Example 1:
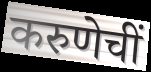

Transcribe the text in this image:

करुणेचीं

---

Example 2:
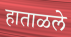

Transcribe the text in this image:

हाताळले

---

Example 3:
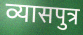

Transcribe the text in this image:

व्यासपुत्र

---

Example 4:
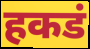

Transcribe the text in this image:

हकडं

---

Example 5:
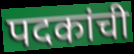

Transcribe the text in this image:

पदकांची